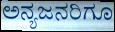
ಅನ್ಯಜನರಿಗೂ